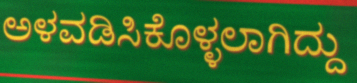
ಅಳವಡಿಸಿಕೊಳ್ಳಲಾಗಿದ್ದು